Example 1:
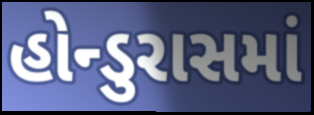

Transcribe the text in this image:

હોન્ડુરાસમાં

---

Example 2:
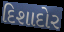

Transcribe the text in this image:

દિશાદોર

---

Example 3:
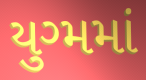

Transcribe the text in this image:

યુગ્મમાં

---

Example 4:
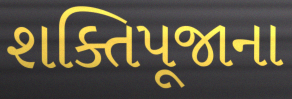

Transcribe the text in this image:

શક્તિપૂજાના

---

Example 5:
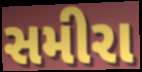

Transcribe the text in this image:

સમીરા